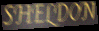
SHELDON